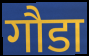
गौडा